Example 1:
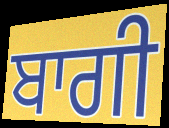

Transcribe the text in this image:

ਬਾਗੀ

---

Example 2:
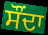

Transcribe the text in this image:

ਸੌਂਦਾ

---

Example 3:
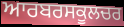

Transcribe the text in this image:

ਆਰਬਰਸਕੂਲਚਰ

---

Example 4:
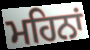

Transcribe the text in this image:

ਮਹਿਨਾਂ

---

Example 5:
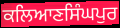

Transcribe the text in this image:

ਕਲਿਆਣਸਿੰਘਪੁਰ